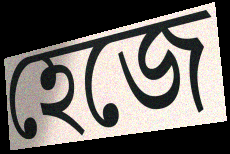
হেজে